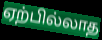
ஏற்பில்லாத